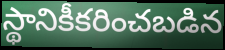
స్థానికీకరించబడిన